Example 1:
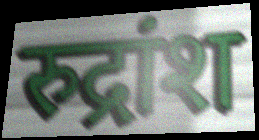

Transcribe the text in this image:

रुद्रांश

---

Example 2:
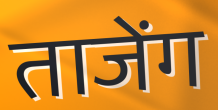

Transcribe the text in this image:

ताजेंग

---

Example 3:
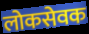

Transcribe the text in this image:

लोकसेवक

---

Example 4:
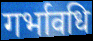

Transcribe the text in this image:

गर्भावधि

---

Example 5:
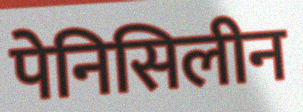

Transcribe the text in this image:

पेनिसिलीन